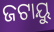
ଜଟାୟୁ